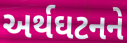
અર્થઘટનને